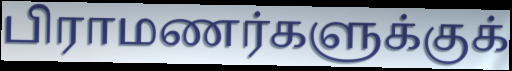
பிராமணர்களுக்குக்